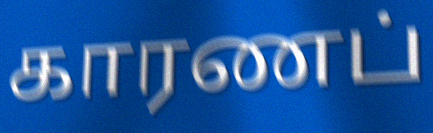
காரணப்